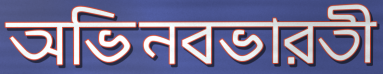
অভিনবভারতী